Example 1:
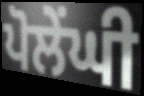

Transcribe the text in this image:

ਪੋਲੇਂਘੀ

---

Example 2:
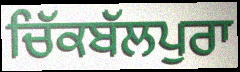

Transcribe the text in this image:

ਚਿੱਕਬੱਲਪੁਰਾ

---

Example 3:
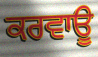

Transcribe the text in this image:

ਕਰਵਾਊ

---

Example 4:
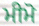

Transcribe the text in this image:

ਮੀਮੋ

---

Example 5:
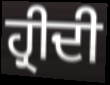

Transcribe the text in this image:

ਹ੍ਰੀਦੀ